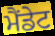
ਮੈਂਡੇਟ